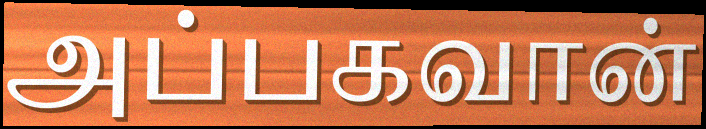
அப்பகவான்